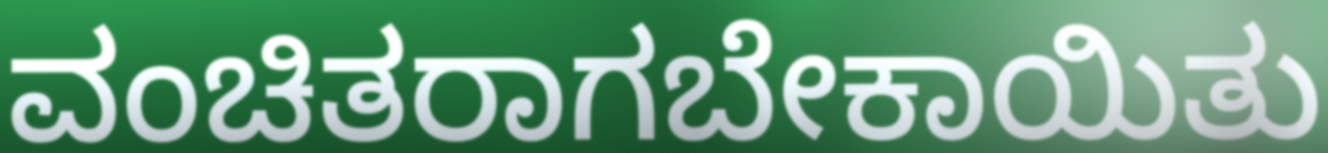
ವಂಚಿತರಾಗಬೇಕಾಯಿತು